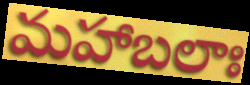
మహాబలాః